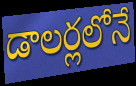
డాలర్లలోనే